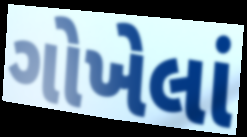
ગોખેલાં